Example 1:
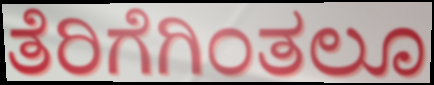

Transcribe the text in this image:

ತೆರಿಗೆಗಿಂತಲೂ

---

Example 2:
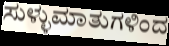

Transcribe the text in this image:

ಸುಳ್ಳುಮಾತುಗಳಿಂದ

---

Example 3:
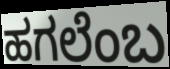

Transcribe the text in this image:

ಹಗಲೆಂಬ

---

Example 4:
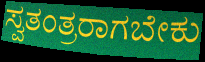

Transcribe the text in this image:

ಸ್ವತಂತ್ರರಾಗಬೇಕು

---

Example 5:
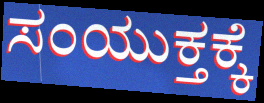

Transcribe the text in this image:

ಸಂಯುಕ್ತಕ್ಕೆ